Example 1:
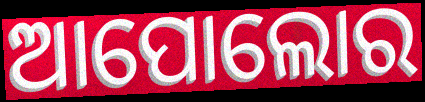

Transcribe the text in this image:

ଆପୋଲୋର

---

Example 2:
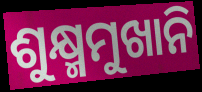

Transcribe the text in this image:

ଶୁକ୍ଷ୍ମମୁଖାନି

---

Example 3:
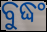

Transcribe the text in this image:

ବୁଦ୍ଧଂ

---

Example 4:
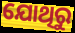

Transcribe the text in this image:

ଯୋଥିରୁ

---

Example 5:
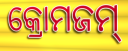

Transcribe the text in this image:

କ୍ରୋମଜମ୍